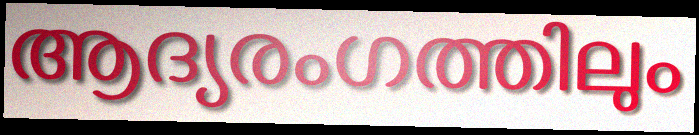
ആദ്യരംഗത്തിലും